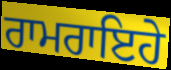
ਰਾਮਰਾਇਹੇ